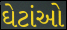
ઘેટાંઓ